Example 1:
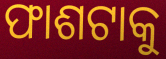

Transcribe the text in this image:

ଫାଶଟାକୁ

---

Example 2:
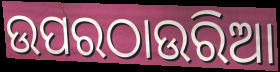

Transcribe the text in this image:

ଉପରଠାଉରିଆ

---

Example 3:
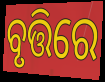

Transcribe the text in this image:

ବୃତ୍ତିରେ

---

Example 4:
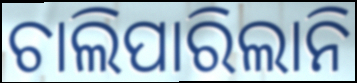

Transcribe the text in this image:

ଚାଲିପାରିଲାନି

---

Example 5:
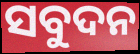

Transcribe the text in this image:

ସବୁଦନ